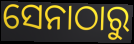
ସେନାଠାରୁ